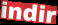
indir